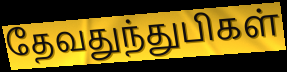
தேவதுந்துபிகள்